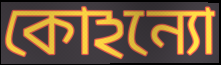
কোঽন্যো